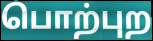
பொற்புற